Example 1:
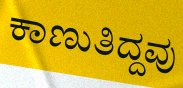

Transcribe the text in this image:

ಕಾಣುತಿದ್ದವು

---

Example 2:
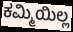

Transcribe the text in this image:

ಕಮ್ಮಿಯಿಲ್ಲ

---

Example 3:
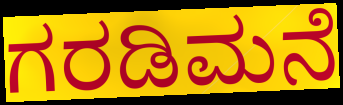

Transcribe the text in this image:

ಗರಡಿಮನೆ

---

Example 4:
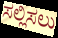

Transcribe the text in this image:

ಸಲ್ಲಿಸಲು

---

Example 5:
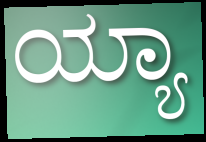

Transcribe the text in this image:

ಯ್ಯಾ